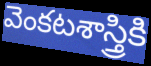
వెంకటశాస్త్రికి